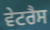
ਵੇਟਰੈਸ